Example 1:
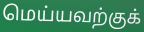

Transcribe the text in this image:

மெய்யவற்குக்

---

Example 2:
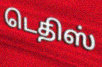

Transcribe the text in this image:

டெதிஸ்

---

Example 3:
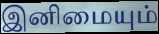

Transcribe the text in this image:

இனிமையும்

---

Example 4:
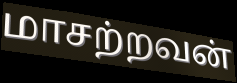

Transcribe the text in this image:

மாசற்றவன்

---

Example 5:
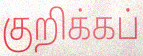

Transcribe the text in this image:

குறிக்கப்